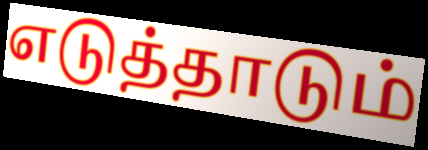
எடுத்தாடும்